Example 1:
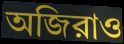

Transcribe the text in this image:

অজিরাও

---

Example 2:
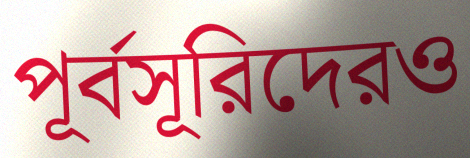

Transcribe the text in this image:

পূর্বসূরিদেরও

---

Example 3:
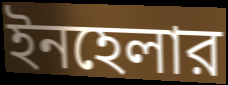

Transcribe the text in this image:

ইনহেলার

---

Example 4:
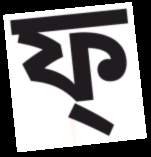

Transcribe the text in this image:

ফ্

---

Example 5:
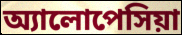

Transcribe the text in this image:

অ্যালোপেসিয়া